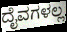
ದೈವಗಳಲ್ಲ